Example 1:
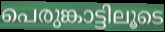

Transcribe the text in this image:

പെരുങ്കാട്ടിലൂടെ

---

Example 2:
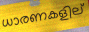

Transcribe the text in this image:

ധാരണകളില്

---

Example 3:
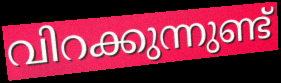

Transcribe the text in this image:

വിറക്കുന്നുണ്ട്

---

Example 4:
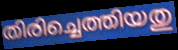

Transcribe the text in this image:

തിരിച്ചെത്തിയതു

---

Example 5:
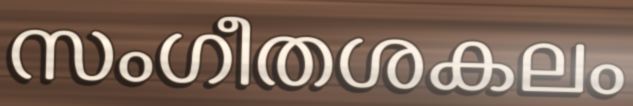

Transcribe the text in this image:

സംഗീതശകലം